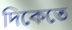
দিকেতে